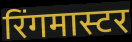
रिंगमास्टर